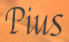
Pius